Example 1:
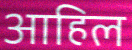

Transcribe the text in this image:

आहिल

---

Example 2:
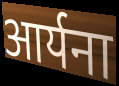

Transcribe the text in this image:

आर्यना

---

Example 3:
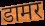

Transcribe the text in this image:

डामर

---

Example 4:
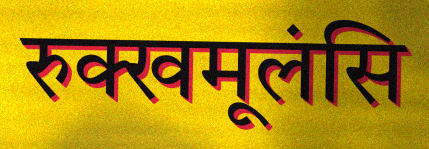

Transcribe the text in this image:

रुक्खमूलंसि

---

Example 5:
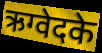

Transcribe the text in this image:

ऋग्वेदके